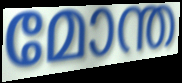
മോന്ത